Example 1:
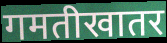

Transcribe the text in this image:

गमतीखातर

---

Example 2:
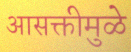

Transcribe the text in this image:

आसक्तीमुळे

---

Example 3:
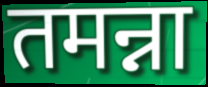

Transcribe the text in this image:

तमन्ना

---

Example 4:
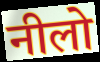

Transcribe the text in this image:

नीलो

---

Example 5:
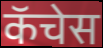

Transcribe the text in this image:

कॅचेस